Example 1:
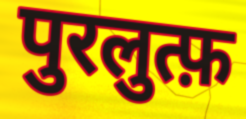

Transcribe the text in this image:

पुरलुत्फ़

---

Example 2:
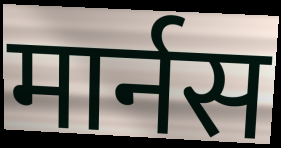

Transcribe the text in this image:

मार्नस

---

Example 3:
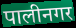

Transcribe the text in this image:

पालीनगर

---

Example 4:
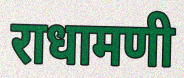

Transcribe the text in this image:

राधामणी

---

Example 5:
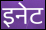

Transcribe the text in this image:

इनेट